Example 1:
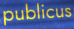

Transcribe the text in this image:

publicus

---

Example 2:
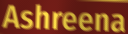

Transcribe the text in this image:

Ashreena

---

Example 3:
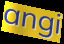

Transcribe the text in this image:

angi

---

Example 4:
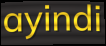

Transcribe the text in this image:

ayindi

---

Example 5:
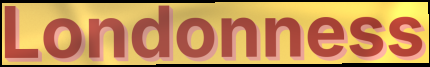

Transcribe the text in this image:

Londonness